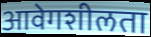
आवेगशीलता